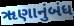
ૠણાનુંબંધ